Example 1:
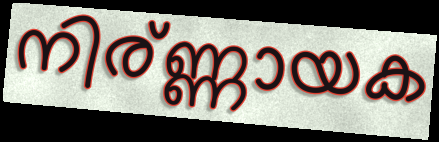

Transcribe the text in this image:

നിര്ണ്ണായക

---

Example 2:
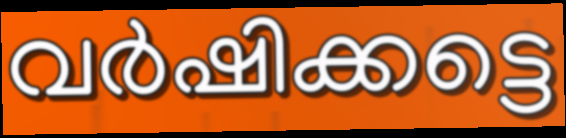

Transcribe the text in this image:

വർഷിക്കട്ടെ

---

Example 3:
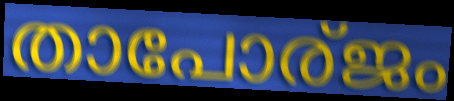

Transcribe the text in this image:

താപോര്ജം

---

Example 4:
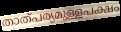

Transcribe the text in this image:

താത്പര്യമുള്ളപക്ഷം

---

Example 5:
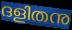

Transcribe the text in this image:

ദളിതനു